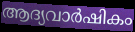
ആദ്യവാർഷികം